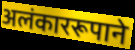
अलंकाररूपाने